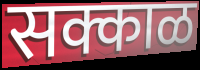
सक्काळ